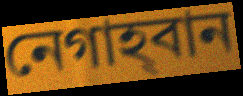
নেগাহ্‌বান